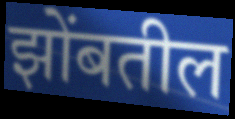
झोंबतील